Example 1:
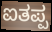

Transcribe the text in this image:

ಐತಪ್ಪ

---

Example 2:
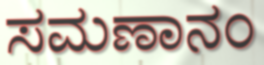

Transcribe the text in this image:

ಸಮಣಾನಂ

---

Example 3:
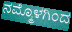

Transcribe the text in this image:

ನಮ್ಮೊಳಗಿಂದ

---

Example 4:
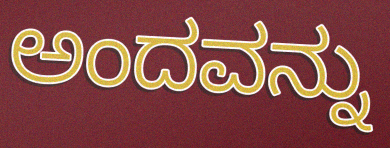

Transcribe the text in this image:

ಅಂದವನ್ನು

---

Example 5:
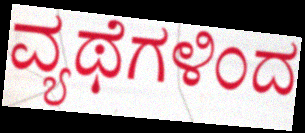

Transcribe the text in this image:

ವ್ಯಥೆಗಳಿಂದ